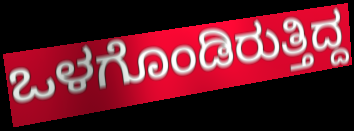
ಒಳಗೊಂಡಿರುತ್ತಿದ್ದ